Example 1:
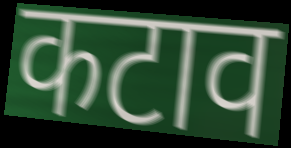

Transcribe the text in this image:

कटाव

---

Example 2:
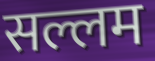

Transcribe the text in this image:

सल्लम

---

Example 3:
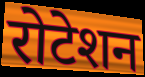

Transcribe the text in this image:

रोटेशन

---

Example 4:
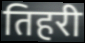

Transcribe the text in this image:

तिहरी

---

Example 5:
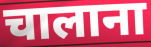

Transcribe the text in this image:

चालाना